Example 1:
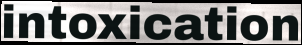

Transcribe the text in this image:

intoxication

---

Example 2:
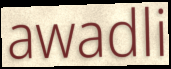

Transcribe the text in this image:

awadli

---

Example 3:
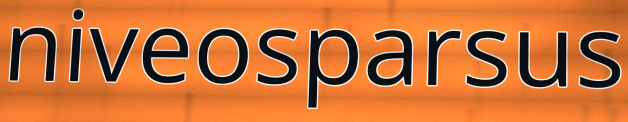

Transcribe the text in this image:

niveosparsus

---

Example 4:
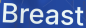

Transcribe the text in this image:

Breast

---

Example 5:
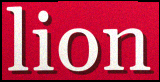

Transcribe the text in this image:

lion